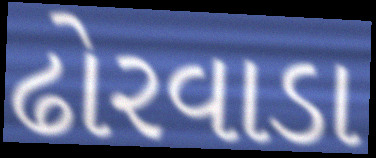
ઢોરવાડા